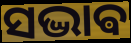
ସଦ୍ଭାଵ